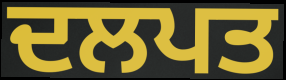
ਦਲਪਤ